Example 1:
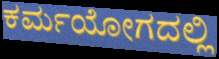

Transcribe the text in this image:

ಕರ್ಮಯೋಗದಲ್ಲಿ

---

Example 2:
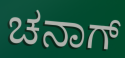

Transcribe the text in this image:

ಚನಾಗ್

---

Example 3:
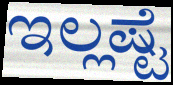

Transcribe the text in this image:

ಇಲ್ಲಷ್ಟೆ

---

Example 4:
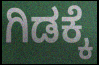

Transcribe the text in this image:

ಗಿಡಕ್ಕೆ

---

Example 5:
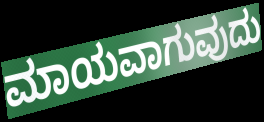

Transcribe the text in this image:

ಮಾಯವಾಗುವುದು